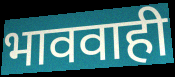
भाववाही